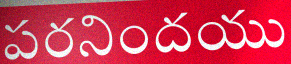
పరనిందయు